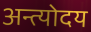
अन्त्योदय